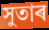
সুতাৰ